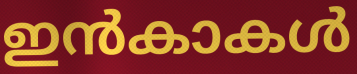
ഇൻകാകൾ